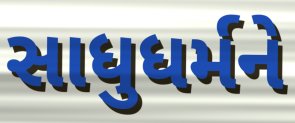
સાધુધર્મને